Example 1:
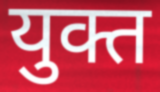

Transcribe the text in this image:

युक्त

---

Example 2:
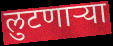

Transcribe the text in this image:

लुटणाऱ्या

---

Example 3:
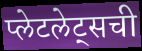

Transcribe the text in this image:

प्लेटलेट्‌सची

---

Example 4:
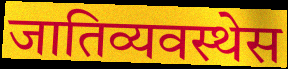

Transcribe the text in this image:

जातिव्यवस्थेस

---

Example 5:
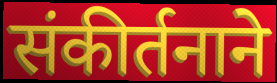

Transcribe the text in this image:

संकीर्तनाने